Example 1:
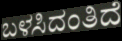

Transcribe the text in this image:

ಬಳಸಿದಂತಿದೆ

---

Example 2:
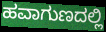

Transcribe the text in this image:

ಹವಾಗುಣದಲ್ಲಿ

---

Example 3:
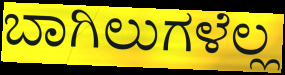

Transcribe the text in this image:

ಬಾಗಿಲುಗಳೆಲ್ಲ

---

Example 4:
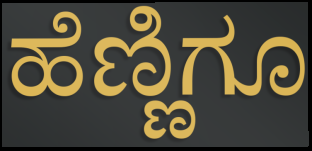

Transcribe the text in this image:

ಹೆಣ್ಣಿಗೂ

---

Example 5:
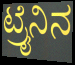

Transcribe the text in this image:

ಟ್ರೈನಿನ